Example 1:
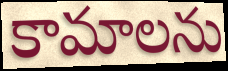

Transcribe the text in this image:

కామాలను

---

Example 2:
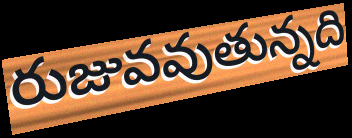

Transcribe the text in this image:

రుజువవుతున్నది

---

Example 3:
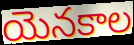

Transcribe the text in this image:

యెనకాల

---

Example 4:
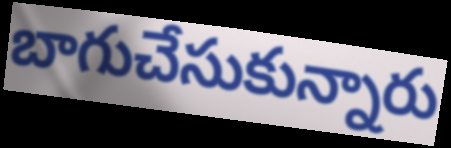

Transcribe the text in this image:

బాగుచేసుకున్నారు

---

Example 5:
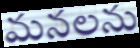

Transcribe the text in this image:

మనలను